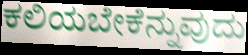
ಕಲಿಯಬೇಕೆನ್ನುವುದು